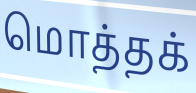
மொத்தக்